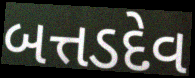
બત્તડદેવ